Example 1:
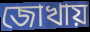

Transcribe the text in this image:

জোখায়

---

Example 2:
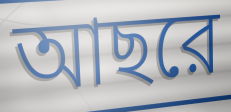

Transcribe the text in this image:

আছরে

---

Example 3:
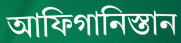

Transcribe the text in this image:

আফিগানিস্তান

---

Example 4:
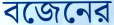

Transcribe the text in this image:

বজেনের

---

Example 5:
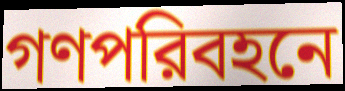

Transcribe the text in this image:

গণপরিবহনে